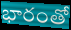
భారంతో